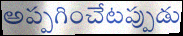
అప్పగించేటప్పుడు